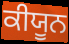
ਕੀਯੂਨ